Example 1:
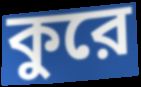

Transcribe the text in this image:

কুরে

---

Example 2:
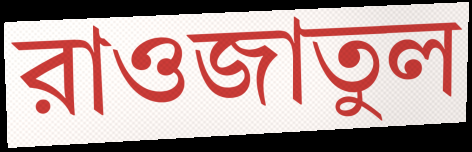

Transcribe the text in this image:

রাওজাতুল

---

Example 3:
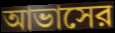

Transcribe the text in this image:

আভাসের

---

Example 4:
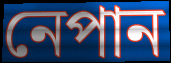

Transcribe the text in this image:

নেপান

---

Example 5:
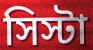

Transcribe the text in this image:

সিস্টা